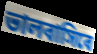
ভালবাসিবে